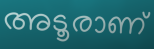
അടൂരാണ്